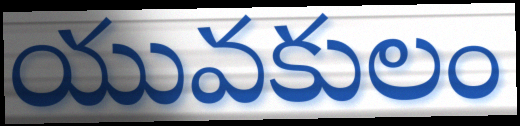
యువకులం